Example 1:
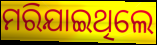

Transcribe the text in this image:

ମରିଯାଇଥିଲେ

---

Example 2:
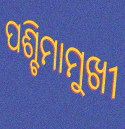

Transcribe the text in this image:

ପଶ୍ଚିମାମୁଖୀ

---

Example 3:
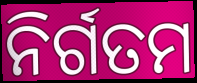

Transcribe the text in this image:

ନିର୍ଗତମ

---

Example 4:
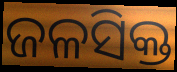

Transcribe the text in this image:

ଜଳସିକ୍ତ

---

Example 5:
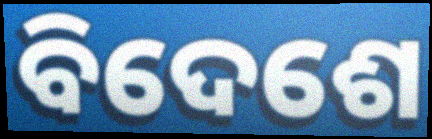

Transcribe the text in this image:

ବିଦେଶେ